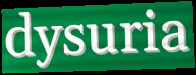
dysuria